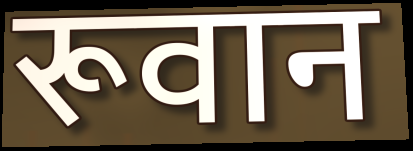
रूवान